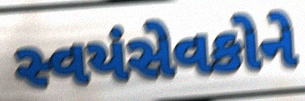
સ્વયંસેવકોને